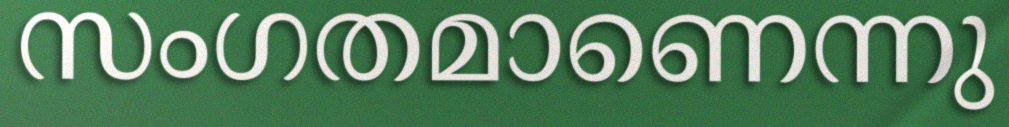
സംഗതമാണെന്നു